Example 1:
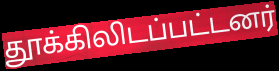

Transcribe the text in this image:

தூக்கிலிடப்பட்டனர்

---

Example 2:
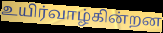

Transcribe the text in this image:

உயிர்வாழ்கின்றன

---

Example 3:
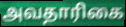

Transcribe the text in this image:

அவதாரிகை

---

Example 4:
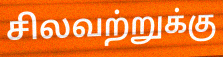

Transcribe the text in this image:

சிலவற்றுக்கு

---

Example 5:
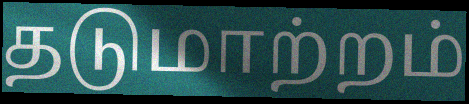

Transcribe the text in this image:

தடுமாற்றம்